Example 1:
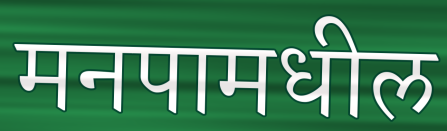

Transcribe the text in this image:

मनपामधील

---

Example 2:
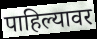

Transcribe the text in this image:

पाहिल्‍यावर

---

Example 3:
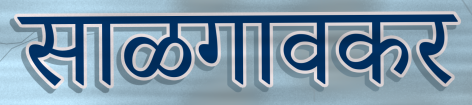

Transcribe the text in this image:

साळगावकर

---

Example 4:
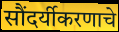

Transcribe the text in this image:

सौंदर्यीकरणाचे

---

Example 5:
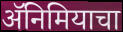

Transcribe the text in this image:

ॲनिमियाचा